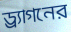
ড্র্যাগনের